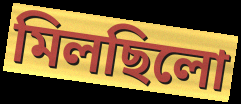
মিলছিলো